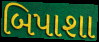
બિપાશા